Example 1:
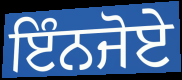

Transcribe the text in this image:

ਇੰਨਜੋਏ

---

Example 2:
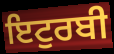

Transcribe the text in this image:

ਇਟੁਰਬੀ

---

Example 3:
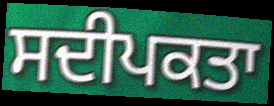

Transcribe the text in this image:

ਸਦੀਪਕਤਾ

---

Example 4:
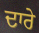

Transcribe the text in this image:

ਦਾਰੇ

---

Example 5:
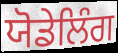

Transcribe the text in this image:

ਯੋਡੇਲਿੰਗ